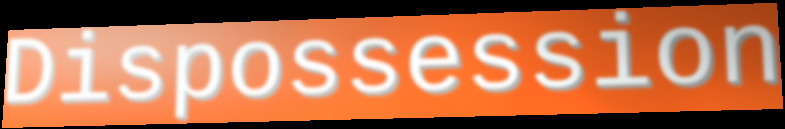
Dispossession